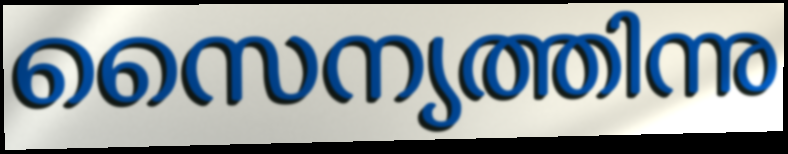
സൈന്യത്തിന്നു